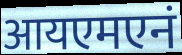
आयएमएनं